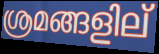
ശ്രമങ്ങളില്